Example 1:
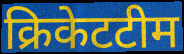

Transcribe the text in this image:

क्रिकेटटीम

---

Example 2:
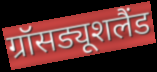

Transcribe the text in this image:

ग्रॉसड्यूशलैंड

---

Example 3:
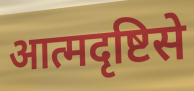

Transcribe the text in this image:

आत्मदृष्टिसे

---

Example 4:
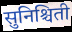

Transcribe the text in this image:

सुनिश्चिती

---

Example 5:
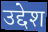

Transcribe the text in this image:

उद्देश